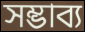
সম্ভাব্য